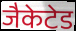
जैकेटेड